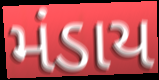
મંડાય